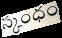
స్కంధం